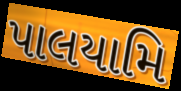
પાલયામિ